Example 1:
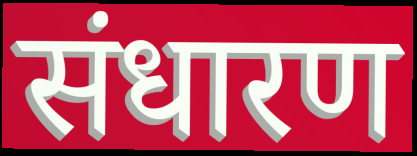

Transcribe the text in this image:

संधारण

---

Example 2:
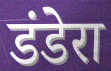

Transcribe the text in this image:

डंडेरा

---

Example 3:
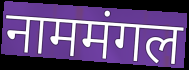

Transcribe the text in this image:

नाममंगल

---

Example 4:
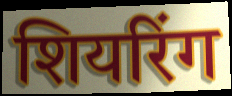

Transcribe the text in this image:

शियरिंग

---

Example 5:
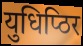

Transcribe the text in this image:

युधिप्ठिर